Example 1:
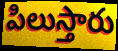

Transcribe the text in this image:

పిలుస్తారు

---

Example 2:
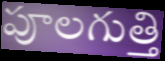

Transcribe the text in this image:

పూలగుత్తి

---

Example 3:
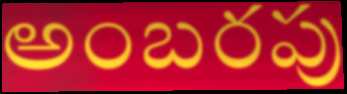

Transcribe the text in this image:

అంబరపు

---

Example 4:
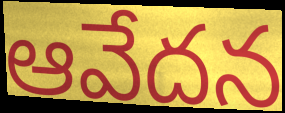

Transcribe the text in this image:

ఆవేదన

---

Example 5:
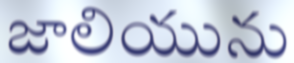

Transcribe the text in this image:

జాలియును